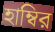
হাম্বির